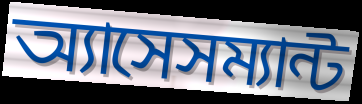
অ্যাসেসম্যান্ট